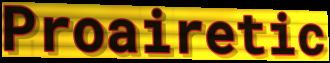
Proairetic